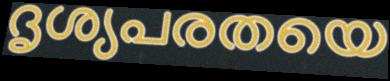
ദൃശ്യപരതയെ